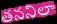
తననిలా